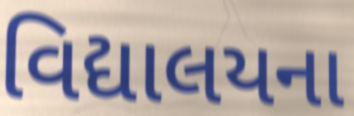
વિદ્યાલયના